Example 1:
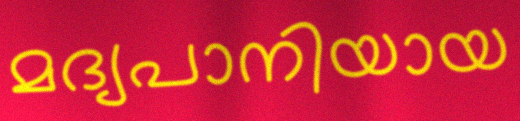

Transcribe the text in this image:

മദ്യപാനിയായ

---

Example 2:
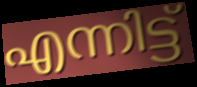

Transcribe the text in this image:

എന്നിട്ട്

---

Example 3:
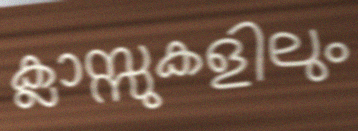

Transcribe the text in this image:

ക്ലാസ്സുകളിലും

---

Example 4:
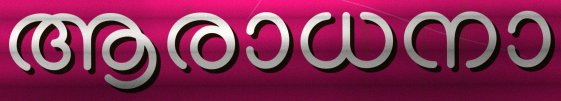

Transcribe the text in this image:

ആരാധനാ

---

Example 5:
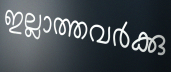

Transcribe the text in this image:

ഇല്ലാത്തവർക്കു